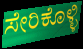
ಸೇರಿಕೊಳ್ಳಿ